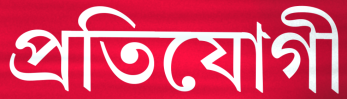
প্ৰতিযোগী